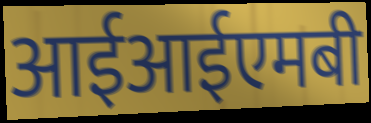
आईआईएमबी